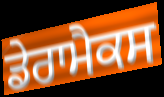
ਡੇਰਾਮੈਕਸ